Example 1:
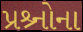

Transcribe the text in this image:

પ્રશ્ર્નોના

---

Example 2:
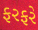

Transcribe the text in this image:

ફરફરે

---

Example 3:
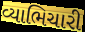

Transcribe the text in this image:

વ્યાભિચારી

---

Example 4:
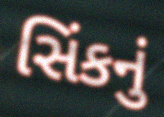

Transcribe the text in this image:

સિંકનું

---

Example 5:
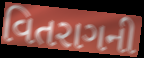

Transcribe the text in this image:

વિતરાગની